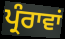
ਪ੍ਰੰਰਾਵਾਂ